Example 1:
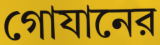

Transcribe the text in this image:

গোযানের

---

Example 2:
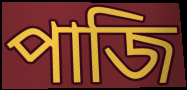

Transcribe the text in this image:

পাজি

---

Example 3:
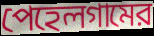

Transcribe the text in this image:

পেহেলগামের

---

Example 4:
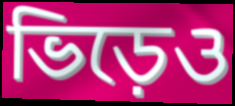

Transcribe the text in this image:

ভিড়েও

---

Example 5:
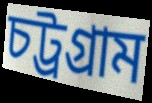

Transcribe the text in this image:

চট্রগ্রাম